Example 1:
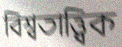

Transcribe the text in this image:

বিশ্বতাত্ত্বিক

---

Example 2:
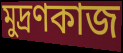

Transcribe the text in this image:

মুদ্রণকাজ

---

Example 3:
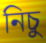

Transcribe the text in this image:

নিচু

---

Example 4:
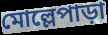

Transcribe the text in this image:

মোল্লেপাড়া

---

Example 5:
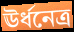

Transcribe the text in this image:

ঊর্ধনেত্র